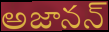
అజానన్